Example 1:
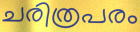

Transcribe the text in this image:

ചരിത്രപരം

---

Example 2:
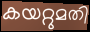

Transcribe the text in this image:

കയറ്റുമതി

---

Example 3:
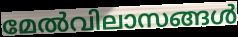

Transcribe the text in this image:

മേൽവിലാസങ്ങൾ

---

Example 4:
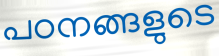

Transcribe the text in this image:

പഠനങ്ങളുടെ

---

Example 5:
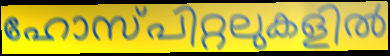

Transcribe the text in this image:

ഹോസ്പിറ്റലുകളിൽ